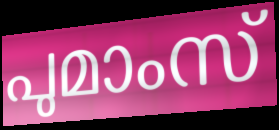
പുമാംസ്